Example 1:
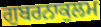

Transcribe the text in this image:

ਗੁਬਰਨਾਕੁਲਮ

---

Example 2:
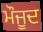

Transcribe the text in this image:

ਮੌਜੂਦ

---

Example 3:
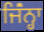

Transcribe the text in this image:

ਜਿੰਂਨ੍ਹਾ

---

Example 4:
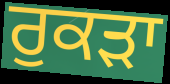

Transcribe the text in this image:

ਰੁਕੜਾ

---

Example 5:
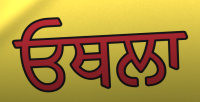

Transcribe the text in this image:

ਓਥਲਾ